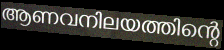
ആണവനിലയത്തിന്റെ